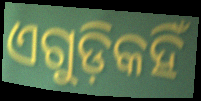
ଏଗୁଡ଼ିକହିଁ